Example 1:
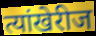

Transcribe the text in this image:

त्यांखेरीज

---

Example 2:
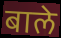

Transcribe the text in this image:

बाले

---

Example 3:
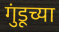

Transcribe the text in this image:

गुंडूच्या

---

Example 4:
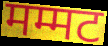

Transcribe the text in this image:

मम्मट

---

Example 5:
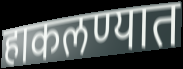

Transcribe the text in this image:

हाकलण्यात